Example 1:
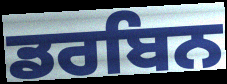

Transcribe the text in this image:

ਡਰਬਿਨ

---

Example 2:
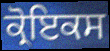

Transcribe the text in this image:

ਕ੍ਰੋਇਕਸ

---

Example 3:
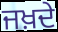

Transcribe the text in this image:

ਜਖ਼ਦੇ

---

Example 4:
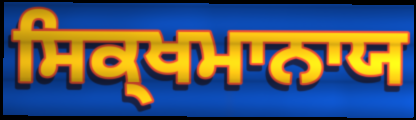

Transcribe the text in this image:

ਸਿਕ੍ਖਮਾਨਾਯ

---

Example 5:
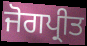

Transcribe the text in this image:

ਜੋਗਪ੍ਰੀਤ